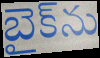
బైక్‌ను